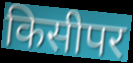
किसीपर